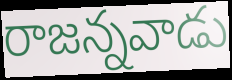
రాజన్నవాడు